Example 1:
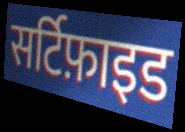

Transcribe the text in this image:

सर्टिफ़ाइड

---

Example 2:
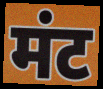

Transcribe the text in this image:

मंट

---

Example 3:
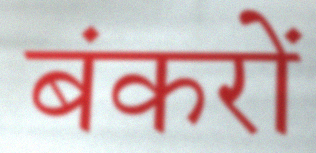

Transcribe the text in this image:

बंकरों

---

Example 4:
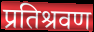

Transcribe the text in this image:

प्रतिश्रवण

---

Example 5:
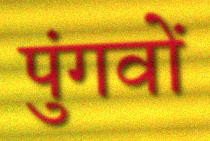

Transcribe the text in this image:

पुंगवों